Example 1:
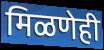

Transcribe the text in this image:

मिळणेही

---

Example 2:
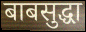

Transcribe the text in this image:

बाबसुद्धा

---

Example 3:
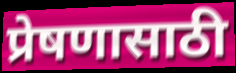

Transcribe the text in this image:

प्रेषणासाठी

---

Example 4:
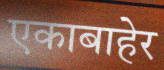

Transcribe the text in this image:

एकाबाहेर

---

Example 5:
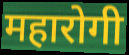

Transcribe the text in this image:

महारोगी